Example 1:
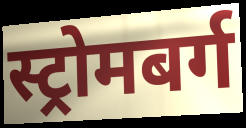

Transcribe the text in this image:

स्ट्रोमबर्ग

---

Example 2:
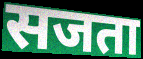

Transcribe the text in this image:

सजता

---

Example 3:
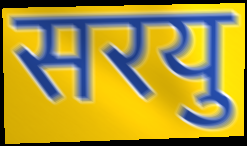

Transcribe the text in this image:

सरयु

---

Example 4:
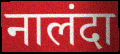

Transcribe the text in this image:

नालंदा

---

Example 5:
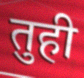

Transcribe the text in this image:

तुही